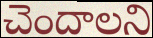
చెందాలని